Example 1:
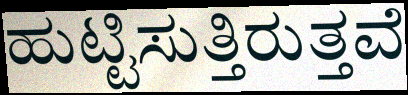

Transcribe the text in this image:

ಹುಟ್ಟಿಸುತ್ತಿರುತ್ತವೆ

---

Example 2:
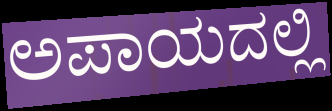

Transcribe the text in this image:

ಅಪಾಯದಲ್ಲಿ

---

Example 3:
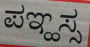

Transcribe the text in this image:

ಪಞ್ಹಸ್ಸ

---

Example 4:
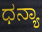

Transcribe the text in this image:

ಧನ್ಯಾ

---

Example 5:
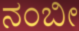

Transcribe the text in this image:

ನಂಬೀ